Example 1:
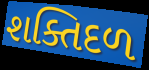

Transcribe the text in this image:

શક્તિદળ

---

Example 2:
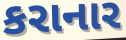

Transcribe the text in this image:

કરાનાર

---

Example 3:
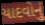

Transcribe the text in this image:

યાદવોનું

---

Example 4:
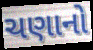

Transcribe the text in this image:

ચણાનો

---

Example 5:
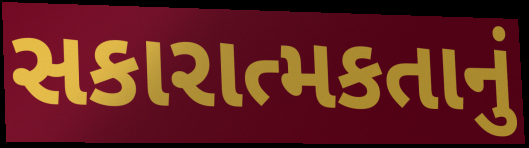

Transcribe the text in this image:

સકારાત્મકતાનું